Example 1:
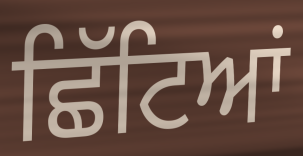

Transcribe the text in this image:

ਛਿੱਟਿਆਂ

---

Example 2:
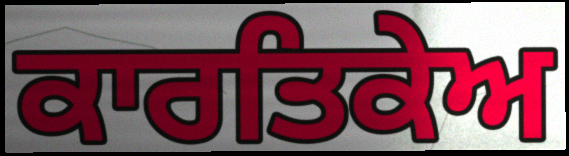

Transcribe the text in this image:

ਕਾਰਤਿਕੇਅ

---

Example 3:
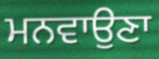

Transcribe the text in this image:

ਮਨਵਾਉਣਾ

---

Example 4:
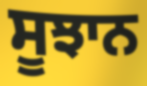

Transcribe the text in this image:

ਸੂਝਾਨ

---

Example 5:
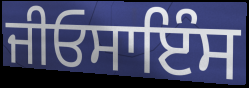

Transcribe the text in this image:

ਜੀਓਸਾਇੰਸ